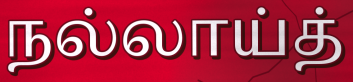
நல்லாய்த்